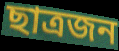
ছাত্ৰজন